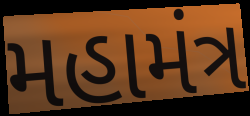
મહામંત્ર